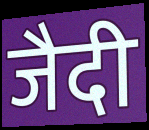
जैदी